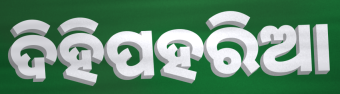
ଦିହିପହରିଆ